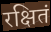
रक्षितं